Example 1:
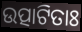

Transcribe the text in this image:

ଉତ୍ପାଟିତାଃ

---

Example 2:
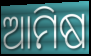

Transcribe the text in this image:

ଆମିଷ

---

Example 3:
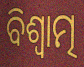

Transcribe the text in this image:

ବିଶ୍ୱାତ୍ମ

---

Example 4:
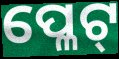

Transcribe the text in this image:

ପ୍ଳେଟ୍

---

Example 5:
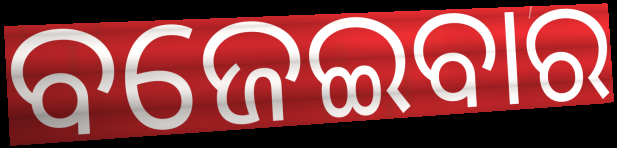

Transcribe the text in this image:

ବଜେଇବାର